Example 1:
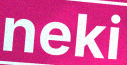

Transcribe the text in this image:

neki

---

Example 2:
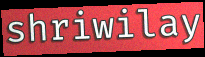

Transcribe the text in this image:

shriwilay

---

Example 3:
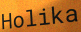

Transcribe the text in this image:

Holika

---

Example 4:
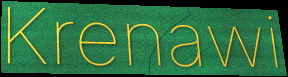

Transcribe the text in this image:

Krenawi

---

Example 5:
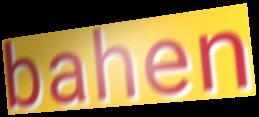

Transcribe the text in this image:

bahen